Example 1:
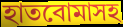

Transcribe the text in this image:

হাতবোমাসহ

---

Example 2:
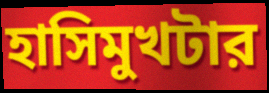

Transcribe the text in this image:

হাসিমুখটার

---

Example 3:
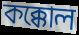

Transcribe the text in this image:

কক্কোল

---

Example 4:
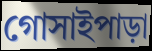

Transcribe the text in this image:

গোসাইপাড়া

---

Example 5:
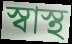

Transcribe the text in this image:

স্বাস্থ